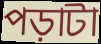
পড়াটা